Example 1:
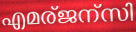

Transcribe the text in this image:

എമര്ജന്സി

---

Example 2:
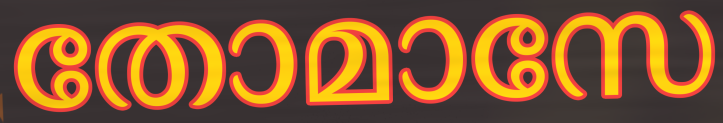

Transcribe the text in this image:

തോമാസേ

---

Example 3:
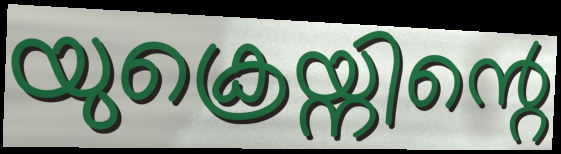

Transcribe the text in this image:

യുക്രെയ്നിന്റെ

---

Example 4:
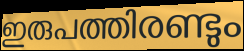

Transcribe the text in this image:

ഇരുപത്തിരണ്ടും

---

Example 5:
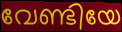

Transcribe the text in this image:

വേണ്ടിയേ